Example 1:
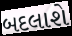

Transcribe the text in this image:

બદલાશે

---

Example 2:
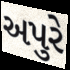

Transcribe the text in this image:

અપુરે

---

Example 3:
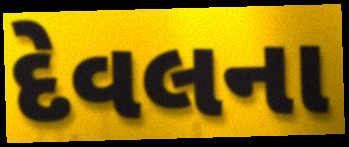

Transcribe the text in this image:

દેવલના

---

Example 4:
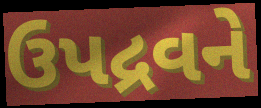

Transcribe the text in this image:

ઉપદ્રવને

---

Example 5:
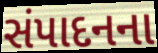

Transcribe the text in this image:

સંપાદનના